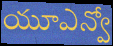
యూఎన్వో